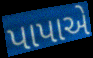
પાપાએ